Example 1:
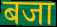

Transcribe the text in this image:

बजा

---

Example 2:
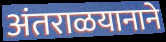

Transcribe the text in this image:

अंतराळयानाने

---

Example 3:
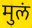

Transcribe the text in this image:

मुलं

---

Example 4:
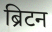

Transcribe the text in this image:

ब्रिटन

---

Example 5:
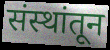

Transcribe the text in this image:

संस्थांतून